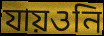
যায়ওনি